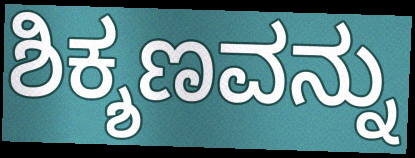
ಶಿಕ್ಶಣವನ್ನು